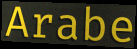
Arabe